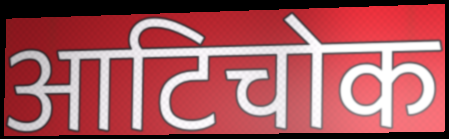
आटिचोक